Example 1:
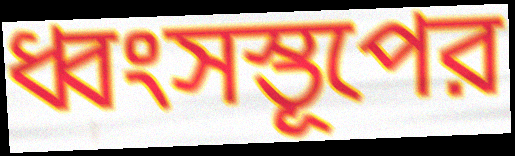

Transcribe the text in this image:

ধ্বংসস্তূপের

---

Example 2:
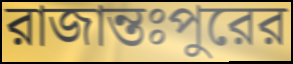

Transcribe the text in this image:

রাজান্তঃপুরের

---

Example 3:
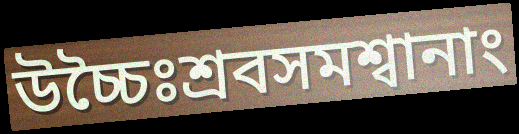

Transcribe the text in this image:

উচ্চৈঃশ্রবসমশ্বানাং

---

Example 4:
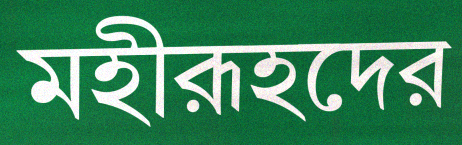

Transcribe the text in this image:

মহীরূহদের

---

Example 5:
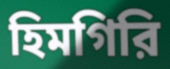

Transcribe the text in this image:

হিমগিরি